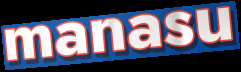
manasu